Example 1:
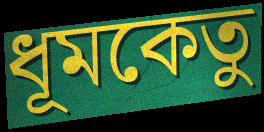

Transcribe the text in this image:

ধূমকেতু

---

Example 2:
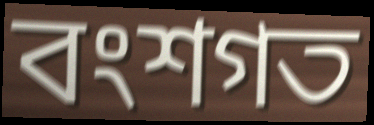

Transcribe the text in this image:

বংশগত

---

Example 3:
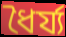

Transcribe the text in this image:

ধৈৰ্য্য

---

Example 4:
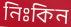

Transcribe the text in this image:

নিঃকিন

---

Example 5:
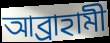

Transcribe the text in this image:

আব্ৰাহামী